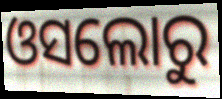
ଓସଲୋରୁ